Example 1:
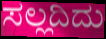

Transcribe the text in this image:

ಸಲ್ಲದಿದು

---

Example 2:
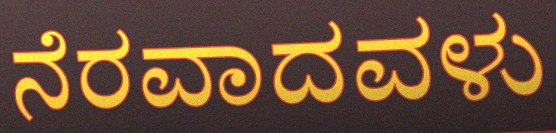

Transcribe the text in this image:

ನೆರವಾದವಳು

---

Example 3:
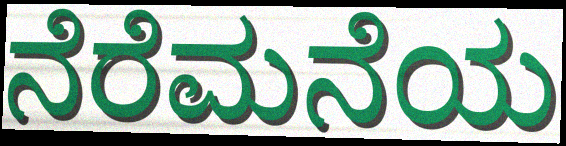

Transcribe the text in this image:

ನೆರೆಮನೆಯ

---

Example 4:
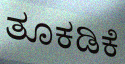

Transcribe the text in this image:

ತೂಕಡಿಕೆ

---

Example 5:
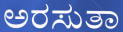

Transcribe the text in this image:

ಅರಸುತಾ